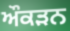
ਔਕੜਨ